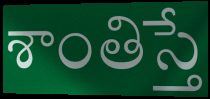
శాంతిస్తే